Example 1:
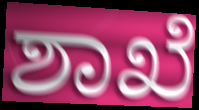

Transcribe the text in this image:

ಶಾಖೆ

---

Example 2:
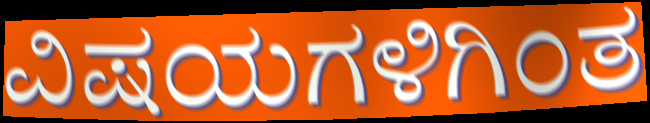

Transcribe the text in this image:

ವಿಷಯಗಳಿಗಿಂತ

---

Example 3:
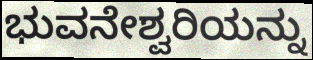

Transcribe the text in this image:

ಭುವನೇಶ್ವರಿಯನ್ನು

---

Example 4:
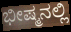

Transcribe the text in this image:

ಭೀಷ್ಮನಲ್ಲಿ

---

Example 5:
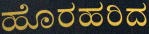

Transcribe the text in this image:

ಹೊರಹರಿದ